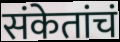
संकेतांचं